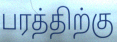
பரத்திற்கு